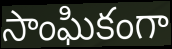
సాంఘికంగా